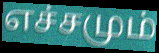
எச்சமும்